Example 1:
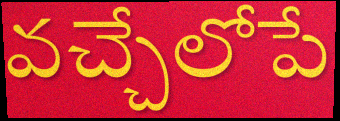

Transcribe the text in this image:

వచ్చేలోపే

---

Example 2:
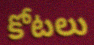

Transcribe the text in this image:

కోటలు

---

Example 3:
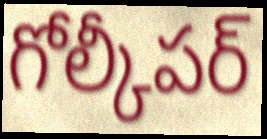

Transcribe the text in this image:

గోల్కీపర్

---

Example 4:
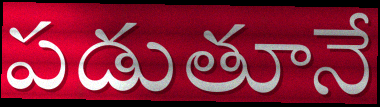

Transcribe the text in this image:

పడుతూనే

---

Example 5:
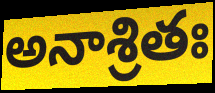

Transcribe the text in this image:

అనాశ్రితః